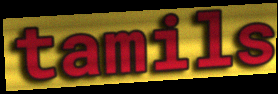
tamils